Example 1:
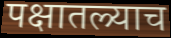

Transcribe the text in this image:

पक्षातल्याच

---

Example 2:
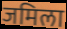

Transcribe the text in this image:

जमिला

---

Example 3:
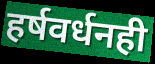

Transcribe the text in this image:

हर्षवर्धनही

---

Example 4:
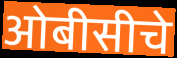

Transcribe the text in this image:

ओबीसीचे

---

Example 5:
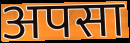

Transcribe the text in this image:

अपसा